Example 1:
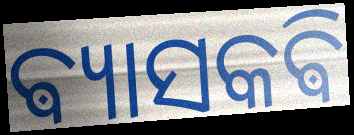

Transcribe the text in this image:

ଵ୍ୟାସକଵି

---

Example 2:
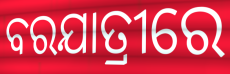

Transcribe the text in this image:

ବରଯାତ୍ରୀରେ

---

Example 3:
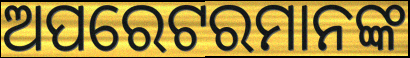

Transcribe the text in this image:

ଅପରେଟରମାନଙ୍କ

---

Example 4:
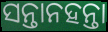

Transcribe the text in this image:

ସନ୍ତାନହନ୍ତା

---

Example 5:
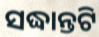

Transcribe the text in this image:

ସଦ୍ଧାନ୍ତଟି